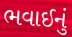
ભવાઈનું